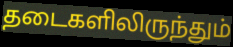
தடைகளிலிருந்தும்